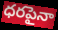
ధరపైనా